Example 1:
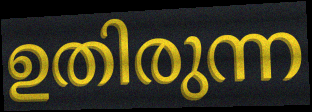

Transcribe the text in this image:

ഉതിരുന്ന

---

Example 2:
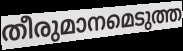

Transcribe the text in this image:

തീരുമാനമെടുത്ത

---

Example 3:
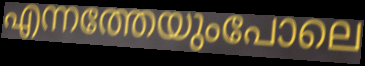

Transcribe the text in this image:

എന്നത്തേയുംപോലെ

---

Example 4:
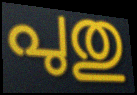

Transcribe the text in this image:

പുതു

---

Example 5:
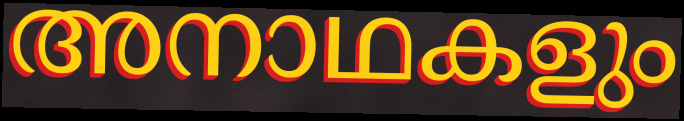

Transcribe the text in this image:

അനാഥകളും